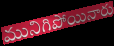
మునిగిపోయినారు